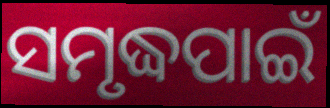
ସମୃଦ୍ଧପାଇଁ